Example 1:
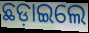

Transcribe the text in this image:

ଛଡ଼ାଇଲେ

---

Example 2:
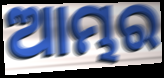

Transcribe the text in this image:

ଆମ୍ଭର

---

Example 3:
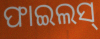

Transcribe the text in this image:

ଫାଇଲସ୍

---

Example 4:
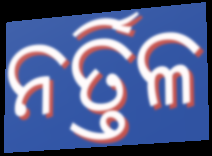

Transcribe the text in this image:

ନର୍ତ୍ତିଳ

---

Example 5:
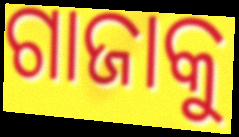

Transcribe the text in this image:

ଗାଜାକୁ